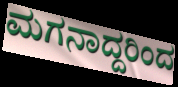
ಮಗನಾದ್ದರಿಂದ